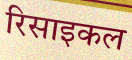
रिसाइकल